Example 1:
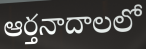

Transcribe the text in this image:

ఆర్తనాదాలలో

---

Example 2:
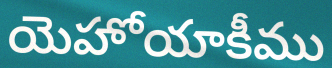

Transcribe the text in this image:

యెహోయాకీము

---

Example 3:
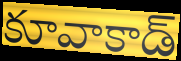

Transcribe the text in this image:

కూవాకాడ్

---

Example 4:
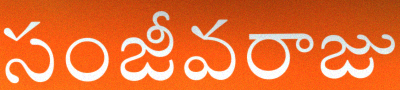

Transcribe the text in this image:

సంజీవరాజు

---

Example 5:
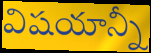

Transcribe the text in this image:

విషయాన్నీ